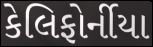
કેલિફોર્નીયા